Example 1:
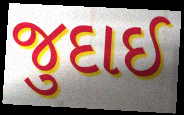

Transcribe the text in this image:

જુદાઈ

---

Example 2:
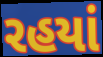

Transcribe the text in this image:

રહયાં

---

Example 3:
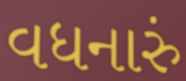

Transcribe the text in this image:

વધનારું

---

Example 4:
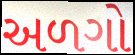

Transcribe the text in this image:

અળગો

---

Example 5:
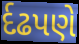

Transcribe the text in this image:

ર્દઢપણે